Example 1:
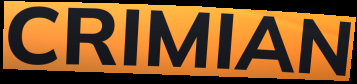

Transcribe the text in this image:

CRIMIAN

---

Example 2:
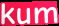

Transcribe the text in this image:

kum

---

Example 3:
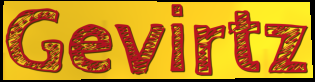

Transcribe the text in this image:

Gevirtz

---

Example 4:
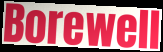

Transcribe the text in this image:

Borewell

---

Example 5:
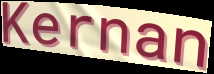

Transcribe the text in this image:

Kernan